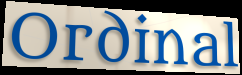
Ordinal